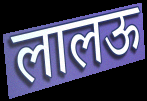
लालऊ